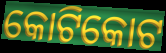
କୋଟିକୋଟ